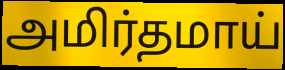
அமிர்தமாய்